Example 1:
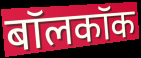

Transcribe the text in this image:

बॉलकॉक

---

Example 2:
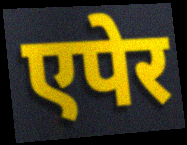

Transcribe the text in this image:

एपेर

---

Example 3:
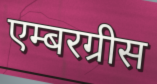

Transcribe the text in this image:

एम्बरग्रीस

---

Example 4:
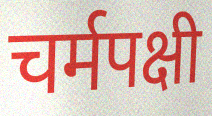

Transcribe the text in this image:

चर्मपक्षी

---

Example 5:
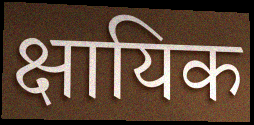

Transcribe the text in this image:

क्षायिक